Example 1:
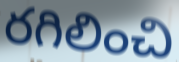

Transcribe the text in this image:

రగిలించి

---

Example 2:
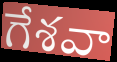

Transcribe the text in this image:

గేశవా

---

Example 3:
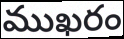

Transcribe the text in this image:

ముఖరం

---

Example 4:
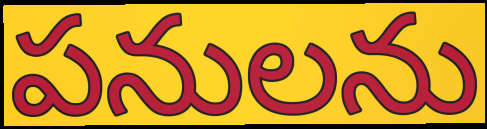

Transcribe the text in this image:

పనులను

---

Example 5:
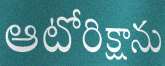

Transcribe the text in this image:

ఆటోరిక్షాను